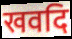
खवदि